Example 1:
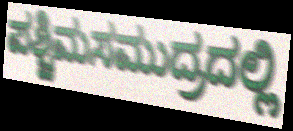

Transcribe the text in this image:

ಪಶ್ಚಿಮಸಮುದ್ರದಲ್ಲಿ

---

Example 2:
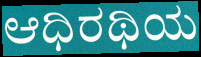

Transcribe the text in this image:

ಆಧಿರಥಿಯ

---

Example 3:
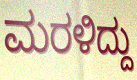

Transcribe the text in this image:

ಮರಳಿದ್ದು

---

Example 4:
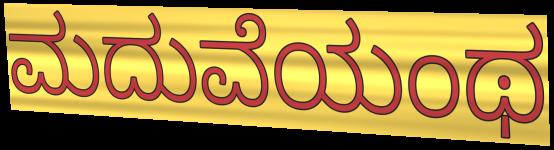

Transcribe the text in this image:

ಮದುವೆಯಂಥ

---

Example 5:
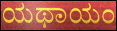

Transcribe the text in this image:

ಯಥಾಯಂ